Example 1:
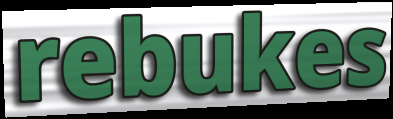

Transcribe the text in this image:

rebukes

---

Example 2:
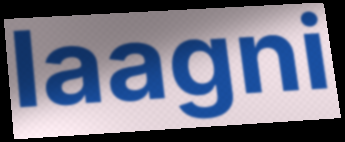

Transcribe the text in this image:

laagni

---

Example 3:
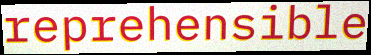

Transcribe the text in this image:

reprehensible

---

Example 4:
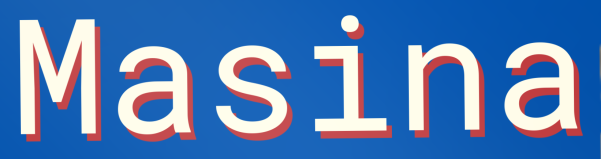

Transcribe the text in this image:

Masina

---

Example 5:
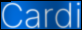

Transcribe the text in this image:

Cardi